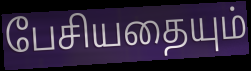
பேசியதையும்